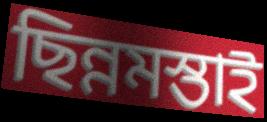
ছিন্নমস্তাই